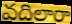
వదిలారా